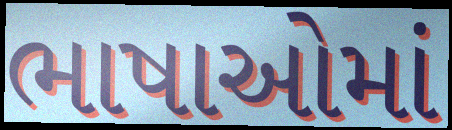
ભાષાઓમાં